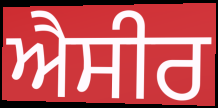
ਐਸੀਰ